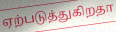
ஏற்படுத்துகிறதா